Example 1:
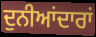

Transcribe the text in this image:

ਦੁਨੀਆਂਦਾਰਾਂ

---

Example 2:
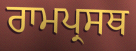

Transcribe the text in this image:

ਰਾਮਪ੍ਰਸਥ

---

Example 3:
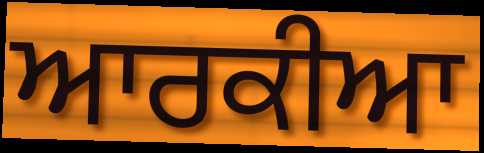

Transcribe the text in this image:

ਆਰਕੀਆ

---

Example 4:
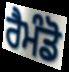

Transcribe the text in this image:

ਰੈਮੰਡੋ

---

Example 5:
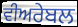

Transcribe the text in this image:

ਵੀਅਰੇਬਲ